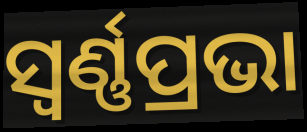
ସ୍ୱର୍ଣ୍ଣପ୍ରଭା